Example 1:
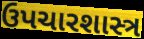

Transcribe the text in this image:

ઉપચારશાસ્ત્ર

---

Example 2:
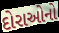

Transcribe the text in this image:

દોરાઓનો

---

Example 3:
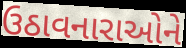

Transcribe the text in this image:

ઉઠાવનારાઓને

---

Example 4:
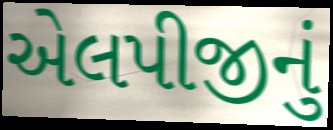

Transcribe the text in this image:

એલપીજીનું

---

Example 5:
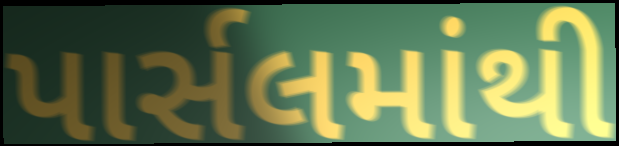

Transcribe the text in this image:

પાર્સલમાંથી